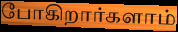
போகிறார்களாம்